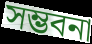
সম্ভবনা